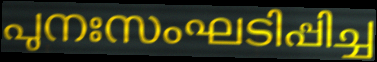
പുനഃസംഘടിപ്പിച്ച